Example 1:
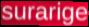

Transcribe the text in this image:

surarige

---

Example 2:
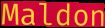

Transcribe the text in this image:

Maldon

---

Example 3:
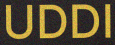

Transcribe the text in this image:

UDDI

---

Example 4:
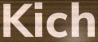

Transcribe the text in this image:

Kich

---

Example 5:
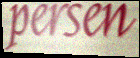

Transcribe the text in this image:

persen